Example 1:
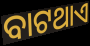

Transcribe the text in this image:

ବାଟଥାଏ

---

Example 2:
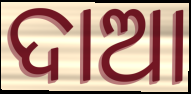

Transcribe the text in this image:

ଦାଆ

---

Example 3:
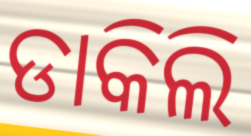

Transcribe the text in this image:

ଡାକିଲି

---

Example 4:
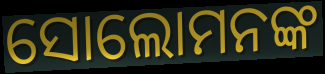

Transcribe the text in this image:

ସୋଲୋମନଙ୍କ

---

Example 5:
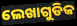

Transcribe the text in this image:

ଲେଖାଗୁଡିକ